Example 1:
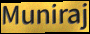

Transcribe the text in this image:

Muniraj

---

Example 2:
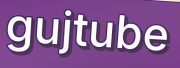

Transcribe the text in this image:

gujtube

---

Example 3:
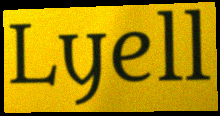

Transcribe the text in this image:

Lyell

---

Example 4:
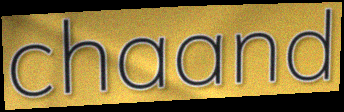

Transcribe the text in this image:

chaand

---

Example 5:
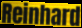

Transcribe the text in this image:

Reinhard